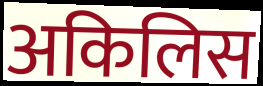
अकिलिस